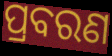
ପ୍ରବରଣ